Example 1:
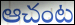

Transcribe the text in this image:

ఆచంట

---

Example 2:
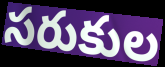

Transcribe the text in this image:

సరుకుల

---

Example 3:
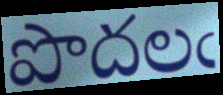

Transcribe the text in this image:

పొదలఁ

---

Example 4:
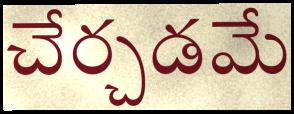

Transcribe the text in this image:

చేర్చడమే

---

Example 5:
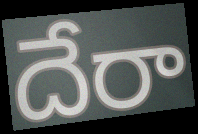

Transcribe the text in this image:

దేరా